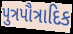
પુત્રપૌત્રાદિક